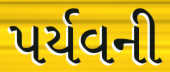
પર્યવની